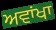
ਅਵਾਂਖਾ